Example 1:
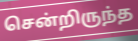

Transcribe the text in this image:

சென்றிருந்த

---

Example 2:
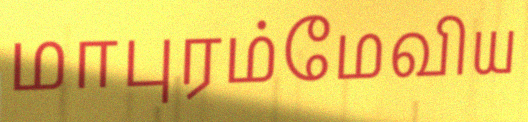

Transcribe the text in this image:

மாபுரம்மேவிய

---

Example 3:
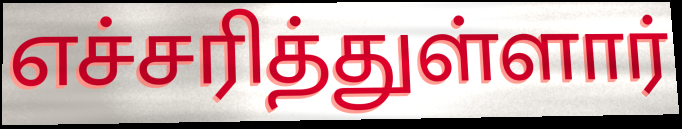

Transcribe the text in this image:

எச்சரித்துள்ளார்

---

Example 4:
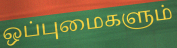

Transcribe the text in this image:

ஒப்புமைகளும்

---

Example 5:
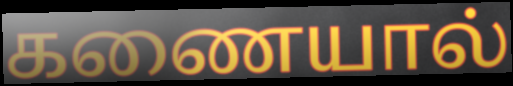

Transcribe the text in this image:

கணையால்